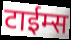
टाईम्स